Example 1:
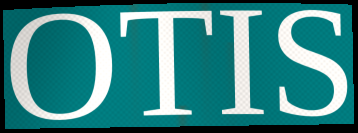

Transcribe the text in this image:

OTIS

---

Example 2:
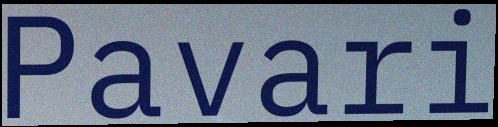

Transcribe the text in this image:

Pavari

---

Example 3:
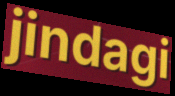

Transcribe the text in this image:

jindagi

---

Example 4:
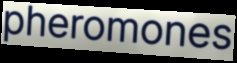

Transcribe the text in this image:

pheromones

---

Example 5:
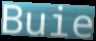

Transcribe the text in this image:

Buie